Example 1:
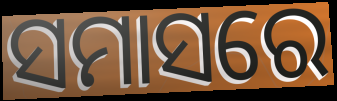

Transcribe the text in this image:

ସମାସରେ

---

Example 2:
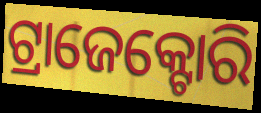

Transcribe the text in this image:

ଟ୍ରାଜେକ୍ଟୋରି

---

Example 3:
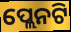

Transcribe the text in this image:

ପ୍ଲେନଟି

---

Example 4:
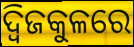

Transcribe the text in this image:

ଦ୍ୱିଜକୁଳରେ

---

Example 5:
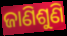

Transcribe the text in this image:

ଜାଣିଶୁଣି